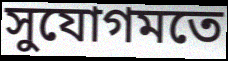
সুযোগমতে